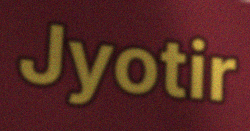
Jyotir